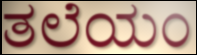
ತಲೆಯಂ